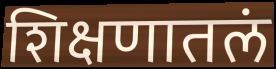
शिक्षणातलं